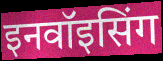
इनवॉइसिंग